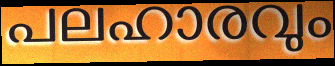
പലഹാരവും